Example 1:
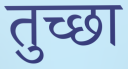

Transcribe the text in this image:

तुच्छा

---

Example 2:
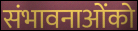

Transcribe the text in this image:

संभावनाओंको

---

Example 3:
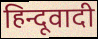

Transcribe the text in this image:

हिन्दूवादी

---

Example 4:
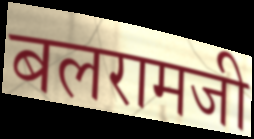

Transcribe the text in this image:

बलरामजी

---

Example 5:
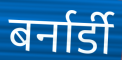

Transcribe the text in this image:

बर्नार्डी